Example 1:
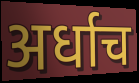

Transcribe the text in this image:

अर्धाच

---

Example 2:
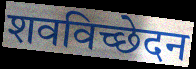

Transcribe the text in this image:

शवविच्छेदन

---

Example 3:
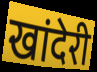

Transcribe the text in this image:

खांदेरी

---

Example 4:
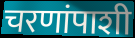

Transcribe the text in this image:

चरणांपाशी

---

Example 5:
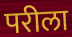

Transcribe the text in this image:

परीला